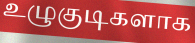
உழுகுடிகளாக